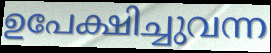
ഉപേക്ഷിച്ചുവന്ന